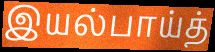
இயல்பாய்த்